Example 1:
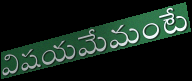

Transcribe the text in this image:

విషయమేమంటే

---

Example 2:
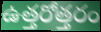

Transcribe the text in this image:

ఉత్తరోత్తరం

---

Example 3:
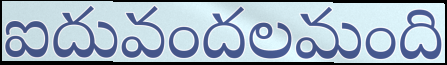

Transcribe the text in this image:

ఐదువందలమంది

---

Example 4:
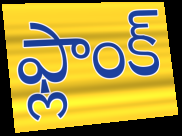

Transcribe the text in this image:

ఫ్లాంక్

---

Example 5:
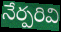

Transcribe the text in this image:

నేర్పరివి